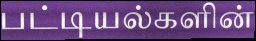
பட்டியல்களின்